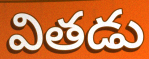
వితడు